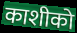
काशीको